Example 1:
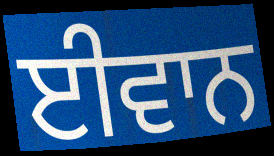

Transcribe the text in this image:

ਈਵਾਨ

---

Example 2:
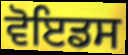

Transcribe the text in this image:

ਵੋਇਡਸ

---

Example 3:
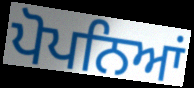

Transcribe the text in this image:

ਪੋਪਨਿਆਂ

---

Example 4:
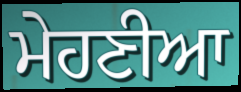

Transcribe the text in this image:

ਮੇਹਣੀਆ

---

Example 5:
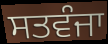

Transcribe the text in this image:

ਸਤਵੰਜਾ